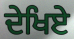
ਦੇਖਿਏ